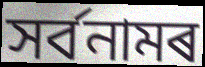
সৰ্বনামৰ